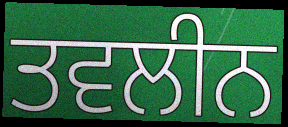
ਤਵਲੀਨ